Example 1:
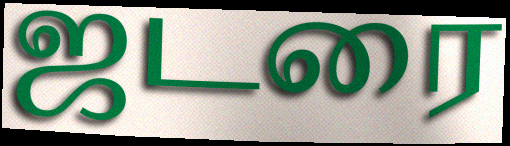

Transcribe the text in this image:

ஜடரை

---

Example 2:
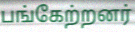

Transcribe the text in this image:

பங்கேற்றனர்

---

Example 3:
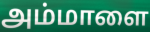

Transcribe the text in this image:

அம்மாளை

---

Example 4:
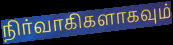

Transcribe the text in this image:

நிர்வாகிகளாகவும்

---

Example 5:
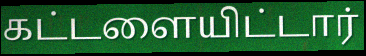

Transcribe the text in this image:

கட்டளையிட்டார்